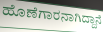
ಹೊಣೆಗಾರನಾಗಿದ್ದಾನೆ